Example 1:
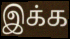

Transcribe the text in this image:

இக்க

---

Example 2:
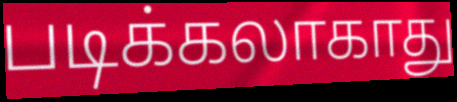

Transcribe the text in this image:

படிக்கலாகாது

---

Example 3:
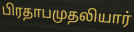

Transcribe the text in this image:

பிரதாபமுதலியார்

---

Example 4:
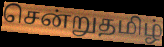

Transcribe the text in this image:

சென்றுதமிழ்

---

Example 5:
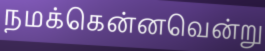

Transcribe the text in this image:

நமக்கென்னவென்று